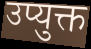
उप्युक्त